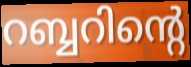
റബ്ബറിന്റെ